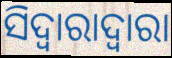
ସିଦ୍ୱାରାଦ୍ୱାରା